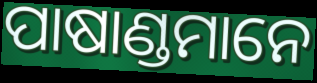
ପାଷାଣ୍ଡମାନେ